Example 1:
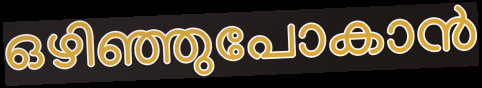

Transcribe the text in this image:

ഒഴിഞ്ഞുപോകാൻ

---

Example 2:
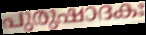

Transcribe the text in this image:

പുരുഷാദകഃ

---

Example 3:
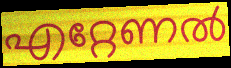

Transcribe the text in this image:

എറ്റേണൽ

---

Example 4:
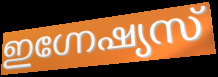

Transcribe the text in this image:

ഇഗ്നേഷ്യസ്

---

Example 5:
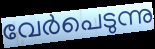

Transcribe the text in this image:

വേർപെടുന്നു